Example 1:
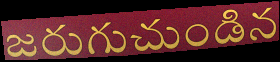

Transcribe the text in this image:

జరుగుచుండిన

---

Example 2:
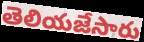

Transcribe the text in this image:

తెలియజేసారు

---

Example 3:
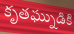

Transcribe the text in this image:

కృతఘ్నుడికి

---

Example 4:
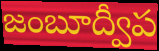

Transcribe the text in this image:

జంబూద్వీప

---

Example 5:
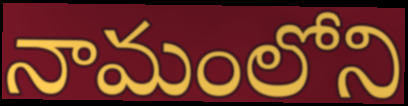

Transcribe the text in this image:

నామంలోని